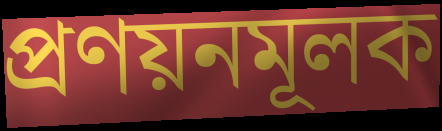
প্রণয়নমূলক